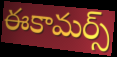
ఈకామర్స్